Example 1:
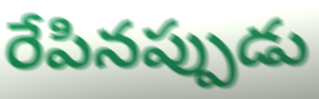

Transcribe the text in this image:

రేపినప్పుడు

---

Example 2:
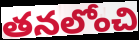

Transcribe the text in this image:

తనలోంచి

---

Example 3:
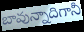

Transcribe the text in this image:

బావున్నాదిగానీ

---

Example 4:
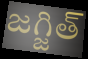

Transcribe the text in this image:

జగ్జిత్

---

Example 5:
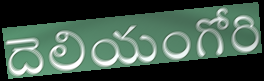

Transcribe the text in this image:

దెలియంగోరి